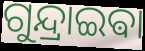
ଗୁନ୍ଦ୍ରାଇଵା